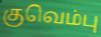
குவெம்பு